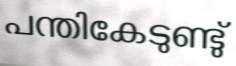
പന്തികേടുണ്ടു്